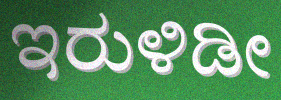
ಇರುಳಿಡೀ